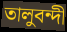
তালুবন্দী